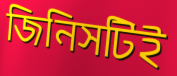
জিনিসটিই